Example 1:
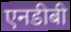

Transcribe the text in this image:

एनडीबी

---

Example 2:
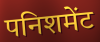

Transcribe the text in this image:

पनिशमेंट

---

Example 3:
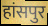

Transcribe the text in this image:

हांसपुर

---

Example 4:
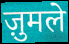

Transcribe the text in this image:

ज़ुमले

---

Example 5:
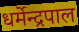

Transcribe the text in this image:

धर्मेन्द्रपाल